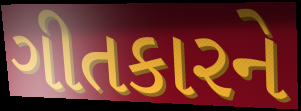
ગીતકારને